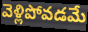
వెళ్లిపోవడమే